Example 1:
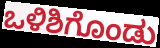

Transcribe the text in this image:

ಒಳಿಶಿಗೊಂಡು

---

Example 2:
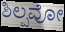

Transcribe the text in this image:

ಶಿಲ್ಪವೋ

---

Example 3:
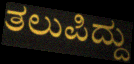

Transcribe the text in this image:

ತಲುಪಿದ್ದು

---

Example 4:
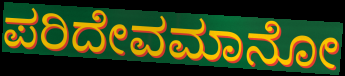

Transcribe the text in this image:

ಪರಿದೇವಮಾನೋ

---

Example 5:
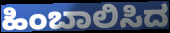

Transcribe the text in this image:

ಹಿಂಬಾಲಿಸಿದ